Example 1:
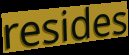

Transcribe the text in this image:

resides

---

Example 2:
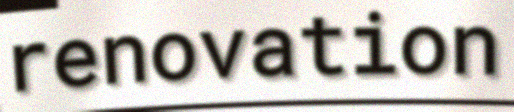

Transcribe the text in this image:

renovation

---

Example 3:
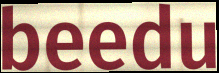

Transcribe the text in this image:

beedu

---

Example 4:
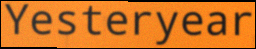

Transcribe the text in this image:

Yesteryear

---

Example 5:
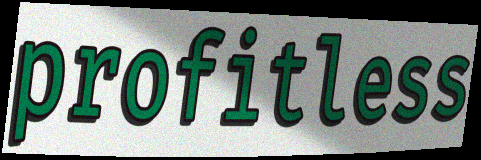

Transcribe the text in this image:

profitless